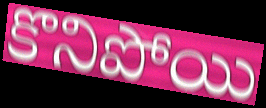
కొనిపోయి